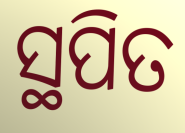
ସ୍ଥପିତ